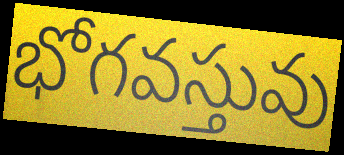
భోగవస్తువు